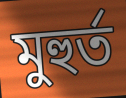
মুহুৰ্ত